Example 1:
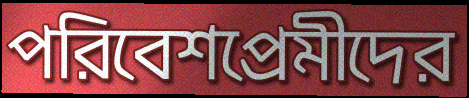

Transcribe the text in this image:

পরিবেশপ্রেমীদের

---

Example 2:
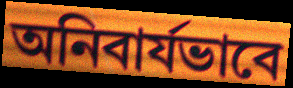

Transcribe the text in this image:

অনিবার্যভাবে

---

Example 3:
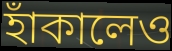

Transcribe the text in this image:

হাঁকালেও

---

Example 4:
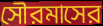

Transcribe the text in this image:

সৌরমাসের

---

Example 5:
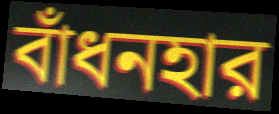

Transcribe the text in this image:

বাঁধনহার